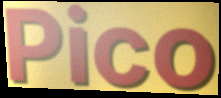
Pico